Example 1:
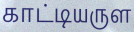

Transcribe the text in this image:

காட்டியருள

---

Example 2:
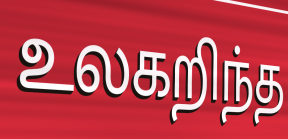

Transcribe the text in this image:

உலகறிந்த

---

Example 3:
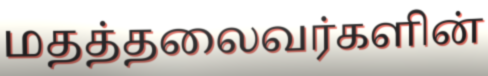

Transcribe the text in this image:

மதத்தலைவர்களின்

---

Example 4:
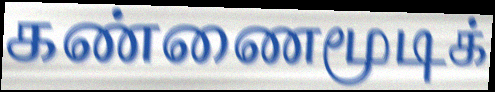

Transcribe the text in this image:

கண்ணைமூடிக்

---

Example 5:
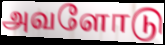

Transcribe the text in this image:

அவளோடு